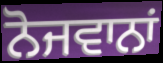
ਨੋਜਵਾਨਾਂ